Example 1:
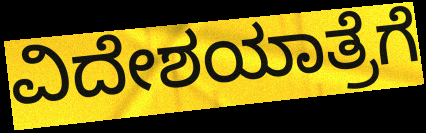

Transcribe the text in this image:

ವಿದೇಶಯಾತ್ರೆಗೆ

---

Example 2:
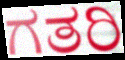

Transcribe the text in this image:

ಗತರಿ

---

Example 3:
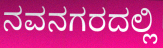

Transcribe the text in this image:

ನವನಗರದಲ್ಲಿ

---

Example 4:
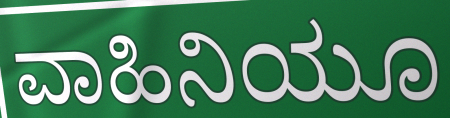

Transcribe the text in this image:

ವಾಹಿನಿಯೂ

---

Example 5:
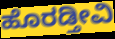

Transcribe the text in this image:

ಹೊರಡ್ತೀವಿ